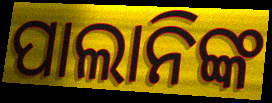
ପାଲାନିଙ୍କ